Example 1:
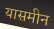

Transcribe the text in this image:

यासमीन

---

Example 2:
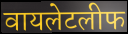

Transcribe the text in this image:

वायलेटलीफ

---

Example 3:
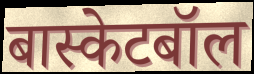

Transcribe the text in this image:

बास्केटबॉल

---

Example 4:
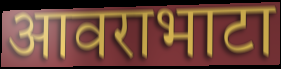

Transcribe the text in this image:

आवराभाटा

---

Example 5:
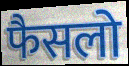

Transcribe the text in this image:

फैसलो